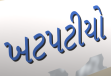
ખટપટીયો